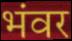
भंवर